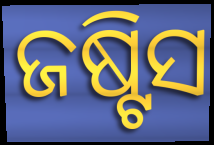
ଜଷ୍ଟିସ